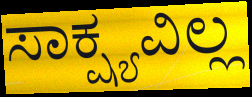
ಸಾಕ್ಷ್ಯವಿಲ್ಲ